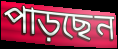
পাড়ছেন